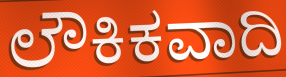
ಲೌಕಿಕವಾದಿ